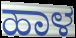
ಹಾಳ